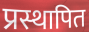
प्रस्थापित